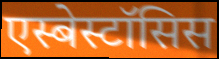
एस्बेस्टॉसिस